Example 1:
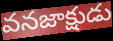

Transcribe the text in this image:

వనజాక్షుడు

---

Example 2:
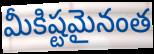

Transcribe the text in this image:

మీకిష్టమైనంత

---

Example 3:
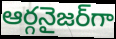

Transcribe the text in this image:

ఆర్గనైజర్‌గా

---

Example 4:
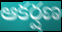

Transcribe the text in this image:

ఆకర్షణ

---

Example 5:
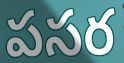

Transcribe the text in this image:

పసర